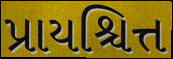
પ્રાયશ્ચિત્ત